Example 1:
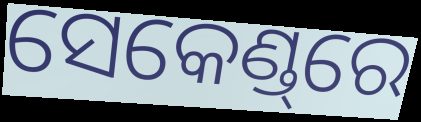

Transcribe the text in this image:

ସେକେଣ୍ଡ୍‌ରେ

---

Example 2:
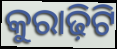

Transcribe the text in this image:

କୁରାଢ଼ିଟି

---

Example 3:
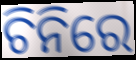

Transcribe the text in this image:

ଚିନିରେ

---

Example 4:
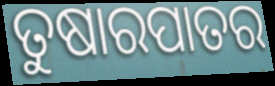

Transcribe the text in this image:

ତୁଷାରପାତର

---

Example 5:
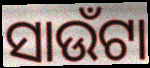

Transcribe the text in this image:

ସାଉଁଟା